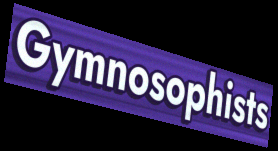
Gymnosophists